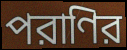
পরাণির